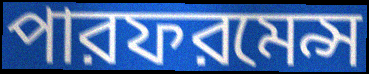
পারফরমেন্স